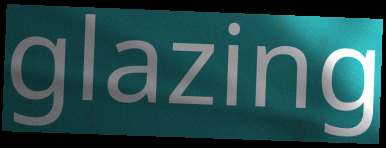
glazing